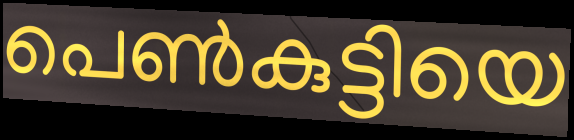
പെൺകുട്ടിയെ